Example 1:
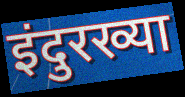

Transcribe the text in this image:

इंदुरख्या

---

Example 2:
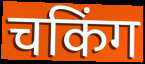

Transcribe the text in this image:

चकिंग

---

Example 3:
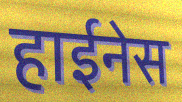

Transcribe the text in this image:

हाईनेस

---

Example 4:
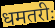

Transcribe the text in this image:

धमतरीः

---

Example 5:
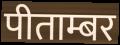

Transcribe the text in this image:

पीताम्बर